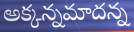
అక్కన్నమాదన్న